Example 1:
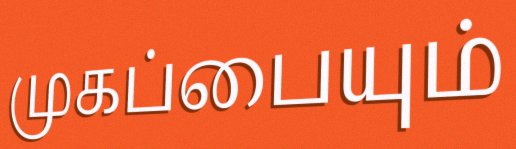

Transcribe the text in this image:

முகப்பையும்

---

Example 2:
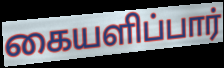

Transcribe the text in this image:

கையளிப்பார்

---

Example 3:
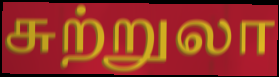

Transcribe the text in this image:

சுற்றுலா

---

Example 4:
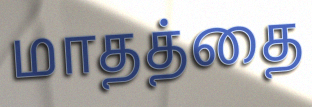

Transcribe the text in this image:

மாதத்தை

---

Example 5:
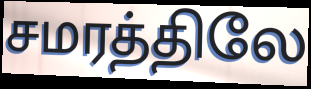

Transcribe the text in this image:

சமரத்திலே